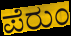
ಪೆರುಂ